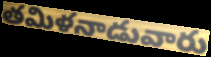
తమిళనాడువారు